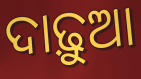
ଦାଢ଼ୁଆ